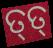
ତ୍‌ତ୍